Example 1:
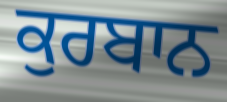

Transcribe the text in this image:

ਕੁਰਬਾਨ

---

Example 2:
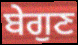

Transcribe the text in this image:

ਬੇਗੁਣ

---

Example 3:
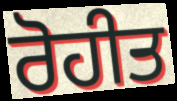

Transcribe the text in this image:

ਰੋਹੀਤ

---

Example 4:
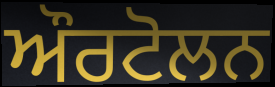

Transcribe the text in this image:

ਔਰਟੋਲਨ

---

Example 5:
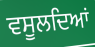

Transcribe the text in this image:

ਵਸੂਲਦਿਆਂ